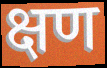
क्षण